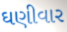
ઘણીવાર